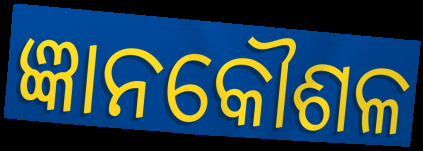
ଜ୍ଞାନକୌଶଳ